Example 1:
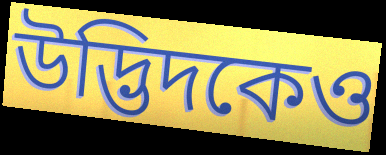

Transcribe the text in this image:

উদ্ভিদকেও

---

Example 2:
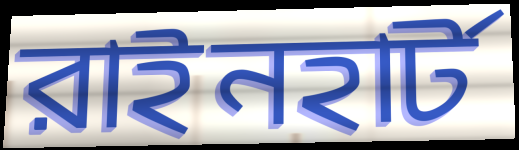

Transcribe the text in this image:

রাইনহার্ট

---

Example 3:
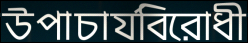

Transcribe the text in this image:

উপাচার্যবিরোধী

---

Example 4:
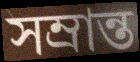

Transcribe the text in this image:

সম্রান্ত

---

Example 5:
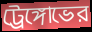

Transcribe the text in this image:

ট্রেঙ্গোভের